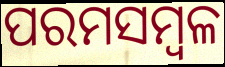
ପରମସମ୍ବଳ